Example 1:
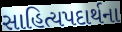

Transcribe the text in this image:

સાહિત્યપદાર્થના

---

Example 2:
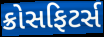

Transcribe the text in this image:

ક્રોસફિટર્સ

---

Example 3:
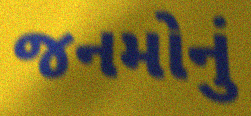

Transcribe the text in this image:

જનમોનું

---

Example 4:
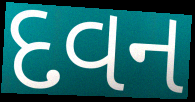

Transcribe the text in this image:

દવન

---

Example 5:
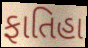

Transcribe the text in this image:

ફાતિહા